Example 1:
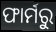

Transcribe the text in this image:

ଫାର୍ମରୁ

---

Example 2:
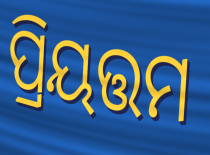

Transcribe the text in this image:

ପ୍ରିୟତ୍ତମ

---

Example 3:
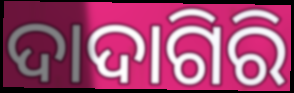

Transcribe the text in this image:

ଦାଦାଗିରି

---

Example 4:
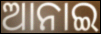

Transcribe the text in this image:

ଆନାଇ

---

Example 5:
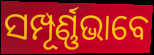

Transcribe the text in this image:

ସମ୍ପୂର୍ଣ୍ଣଭାବେ